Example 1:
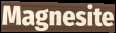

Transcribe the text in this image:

Magnesite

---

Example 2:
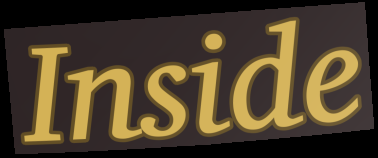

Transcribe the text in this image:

Inside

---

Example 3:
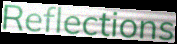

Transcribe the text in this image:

Reflections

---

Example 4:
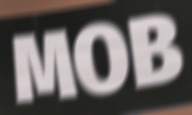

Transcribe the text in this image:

MOB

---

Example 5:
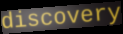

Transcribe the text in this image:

discovery